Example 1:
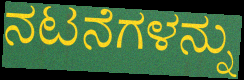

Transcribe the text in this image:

ನಟನೆಗಳನ್ನು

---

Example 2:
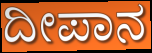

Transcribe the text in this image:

ದೀಪಾನ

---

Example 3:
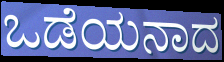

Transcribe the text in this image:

ಒಡೆಯನಾದ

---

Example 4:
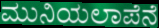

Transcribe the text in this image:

ಮುನಿಯಲಾಪೆನೆ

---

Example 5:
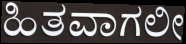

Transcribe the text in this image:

ಹಿತವಾಗಲೀ